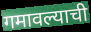
गमावल्याची